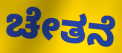
ಚೇತನೆ